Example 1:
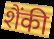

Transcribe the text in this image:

शैंकी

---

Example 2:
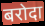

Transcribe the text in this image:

बरोदा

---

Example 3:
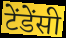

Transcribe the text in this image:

टेंडेंसी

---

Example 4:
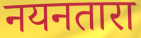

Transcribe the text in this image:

नयनतारा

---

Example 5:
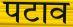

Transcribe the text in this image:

पटाव